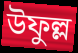
উফুল্ল